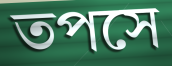
তপসে